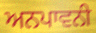
ਅਨਪਾਵਨੀ